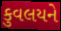
કુવલયને